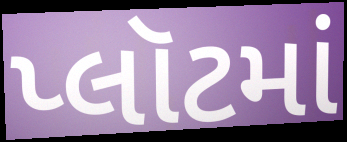
પ્લૉટમાં